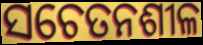
ସଚେତନଶୀଳ